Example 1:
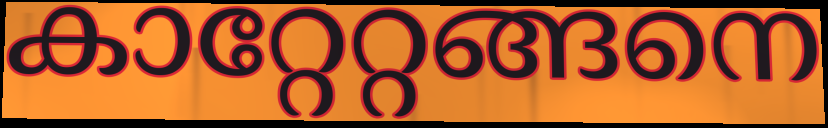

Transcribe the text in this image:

കാറ്റേറ്റങ്ങനെ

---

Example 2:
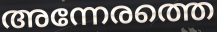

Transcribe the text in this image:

അന്നേരത്തെ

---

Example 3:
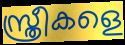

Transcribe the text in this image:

സ്ത്രീകളെ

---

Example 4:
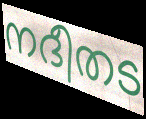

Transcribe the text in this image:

നദീതട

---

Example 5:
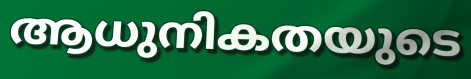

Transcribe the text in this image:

ആധുനികതയുടെ